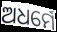
ଅଧର୍ମେ